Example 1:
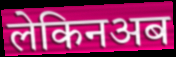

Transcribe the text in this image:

लेकिनअब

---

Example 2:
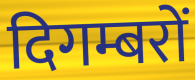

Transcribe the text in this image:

दिगम्बरों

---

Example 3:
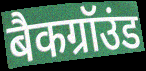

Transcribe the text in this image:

बैकग्रॉउंड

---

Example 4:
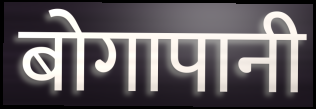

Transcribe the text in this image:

बोगापानी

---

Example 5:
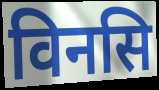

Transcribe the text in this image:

विनसि